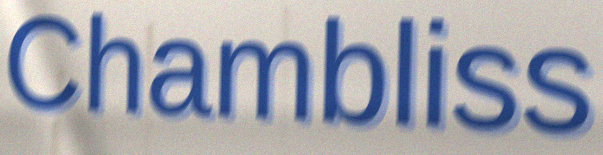
Chambliss